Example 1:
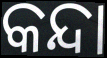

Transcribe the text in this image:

କନ୍ଦା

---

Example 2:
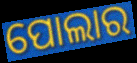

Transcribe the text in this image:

ପୋଲାର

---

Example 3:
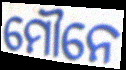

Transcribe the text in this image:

ମୌନେ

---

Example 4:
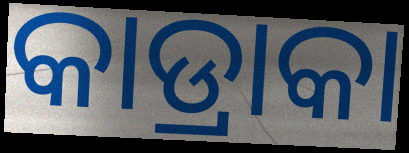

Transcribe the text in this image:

କାଡ୍ରାକା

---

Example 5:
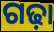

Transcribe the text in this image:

ଗଢ଼ା